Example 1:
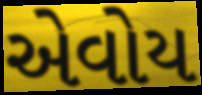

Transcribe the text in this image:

એવોય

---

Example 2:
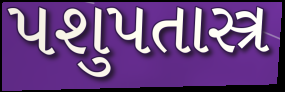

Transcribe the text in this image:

પશુપતાસ્ત્ર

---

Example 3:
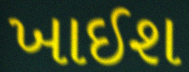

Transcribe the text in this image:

ખાઈશ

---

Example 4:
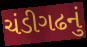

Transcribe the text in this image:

ચંડીગઢનું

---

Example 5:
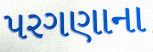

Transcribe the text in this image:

પરગણાના